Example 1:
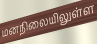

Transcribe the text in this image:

மனநிலையிலுள்ள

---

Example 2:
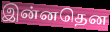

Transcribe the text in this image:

இன்னதென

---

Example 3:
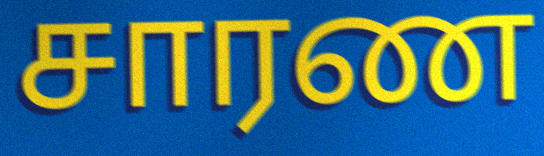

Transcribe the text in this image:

சாரண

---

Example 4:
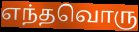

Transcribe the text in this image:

எந்தவொரு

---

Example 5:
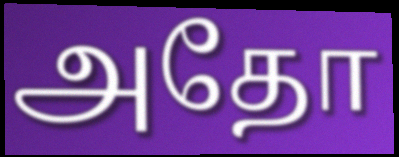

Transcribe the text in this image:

அதோ